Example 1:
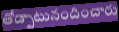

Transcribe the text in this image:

తోడ్పాటునందించారు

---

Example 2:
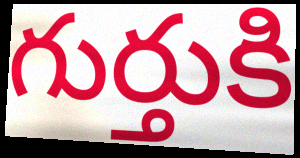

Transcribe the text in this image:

గుర్తుకి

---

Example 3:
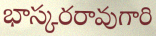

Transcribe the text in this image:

భాస్కరరావుగారి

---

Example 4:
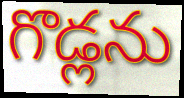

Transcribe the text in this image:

గొడ్లను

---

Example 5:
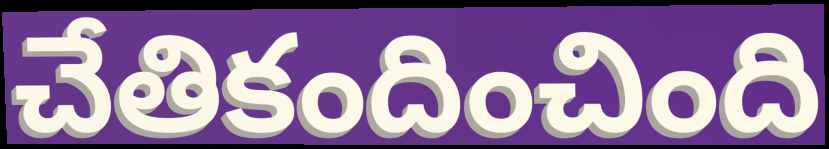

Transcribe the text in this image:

చేతికందించింది